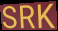
SRK